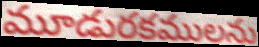
మూడురకములను